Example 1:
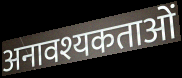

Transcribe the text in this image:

अनावश्यकताओं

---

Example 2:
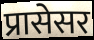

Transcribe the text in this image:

प्रासेसर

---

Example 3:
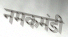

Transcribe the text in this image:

नमकमंडी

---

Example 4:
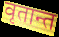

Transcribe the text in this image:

वृतान्त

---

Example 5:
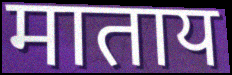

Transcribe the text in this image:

माताय